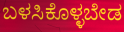
ಬಳಸಿಕೊಳ್ಳಬೇಡ